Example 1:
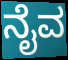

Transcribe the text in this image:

ನೈವ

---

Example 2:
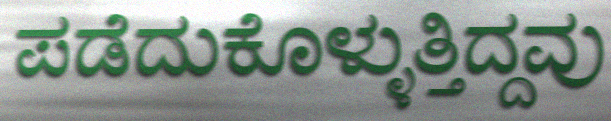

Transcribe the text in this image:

ಪಡೆದುಕೊಳ್ಳುತ್ತಿದ್ದವು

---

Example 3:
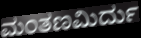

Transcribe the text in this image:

ಮಂತಣಮಿರ್ದು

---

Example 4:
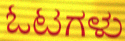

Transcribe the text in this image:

ಓಟಗಳು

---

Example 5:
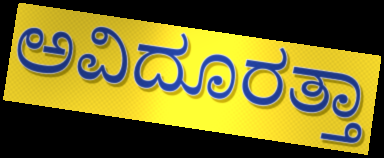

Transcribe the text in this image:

ಅವಿದೂರತ್ತಾ